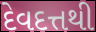
દેવદત્તથી